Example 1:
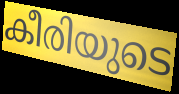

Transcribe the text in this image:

കീരിയുടെ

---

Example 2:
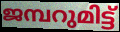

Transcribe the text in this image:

ജമ്പറുമിട്ട്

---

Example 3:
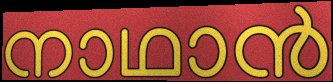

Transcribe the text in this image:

നാഥാൻ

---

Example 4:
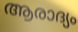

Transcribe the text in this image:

ആരാദ്യം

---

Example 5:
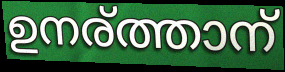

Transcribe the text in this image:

ഉനര്ത്താന്